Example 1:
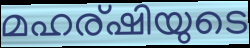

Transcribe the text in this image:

മഹര്ഷിയുടെ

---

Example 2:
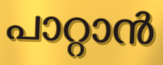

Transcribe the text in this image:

പാറ്റാൻ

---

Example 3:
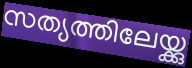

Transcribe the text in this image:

സത്യത്തിലേയ്ക്കു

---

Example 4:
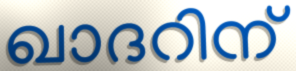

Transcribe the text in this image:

ഖാദറിന്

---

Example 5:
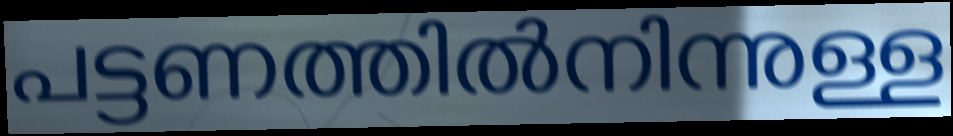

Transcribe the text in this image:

പട്ടണത്തിൽനിന്നുള്ള